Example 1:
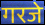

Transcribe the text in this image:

गरजे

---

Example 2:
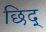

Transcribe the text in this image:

छिद्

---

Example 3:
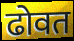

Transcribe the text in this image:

ढोवत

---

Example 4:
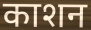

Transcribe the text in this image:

काशन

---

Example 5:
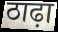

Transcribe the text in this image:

ठाढ़ा